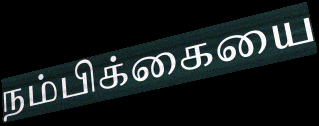
நம்பிக்கையை